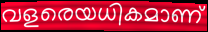
വളരെയധികമാണ്